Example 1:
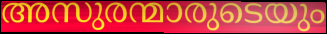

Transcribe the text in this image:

അസുരന്മാരുടെയും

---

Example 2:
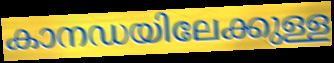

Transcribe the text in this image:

കാനഡയിലേക്കുള്ള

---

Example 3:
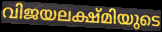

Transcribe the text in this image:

വിജയലക്ഷ്മിയുടെ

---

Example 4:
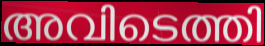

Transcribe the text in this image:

അവിടെത്തി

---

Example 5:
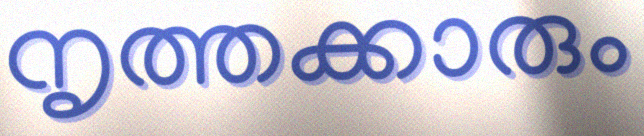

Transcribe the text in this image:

നൃത്തക്കാരും